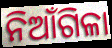
ନିଆଁଗିଳା